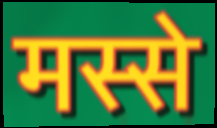
मस्से